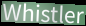
Whistler